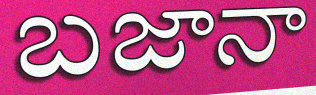
బజానా